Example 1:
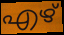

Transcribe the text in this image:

എഴ്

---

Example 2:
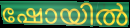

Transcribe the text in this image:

ഷോയിൽ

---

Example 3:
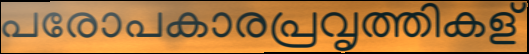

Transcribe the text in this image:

പരോപകാരപ്രവൃത്തികള്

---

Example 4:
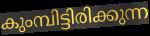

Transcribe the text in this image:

കുംമ്പിട്ടിരിക്കുന്ന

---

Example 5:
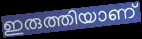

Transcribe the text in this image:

ഇരുത്തിയാണ്